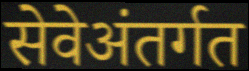
सेवेअंतर्गत